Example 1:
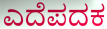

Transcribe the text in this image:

ಎದೆಪದಕ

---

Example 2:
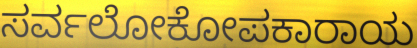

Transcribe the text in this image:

ಸರ್ವಲೋಕೋಪಕಾರಾಯ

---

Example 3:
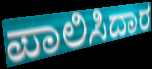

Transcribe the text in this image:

ಪಾಲಿಸಿದಾರ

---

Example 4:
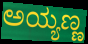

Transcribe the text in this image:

ಅಯ್ಯಣ್ಣ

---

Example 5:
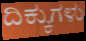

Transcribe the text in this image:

ದಿಕ್ಕುಗಳು